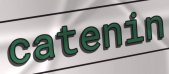
catenin